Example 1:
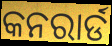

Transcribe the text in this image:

କନରାର୍ଡ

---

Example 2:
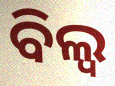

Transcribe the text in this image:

ବିଲ୍ଵ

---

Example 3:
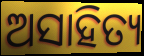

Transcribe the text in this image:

ଅସାହିତ୍ୟ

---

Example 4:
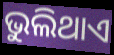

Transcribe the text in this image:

ଭୁଲିଥାଏ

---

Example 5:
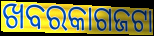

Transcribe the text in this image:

ଖବରକାଗଜଟା